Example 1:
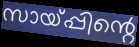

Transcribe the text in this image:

സായ്പ്പിന്റെ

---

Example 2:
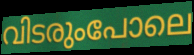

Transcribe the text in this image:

വിടരുംപോലെ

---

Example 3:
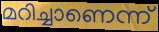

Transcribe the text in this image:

മറിച്ചാണെന്ന്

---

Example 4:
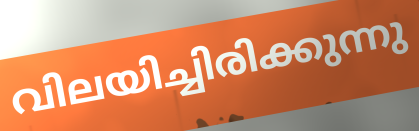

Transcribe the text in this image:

വിലയിച്ചിരിക്കുന്നു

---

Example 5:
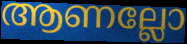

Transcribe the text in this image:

ആണല്ലോ